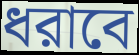
ধরাবে